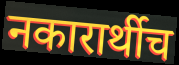
नकारार्थीच